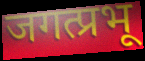
जगत्प्रभू